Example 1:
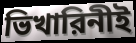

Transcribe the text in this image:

ভিখারিনীই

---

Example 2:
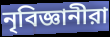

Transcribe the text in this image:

নৃবিজ্ঞানীরা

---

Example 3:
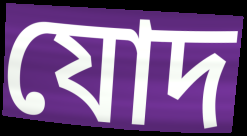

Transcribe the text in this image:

যোদ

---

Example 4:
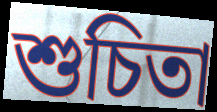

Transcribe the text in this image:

শুচিতা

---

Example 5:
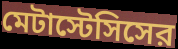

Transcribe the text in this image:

মেটাস্টেসিসের